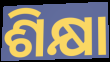
ଶିକ୍ଷା